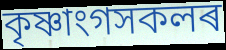
কৃষ্ণাংগসকলৰ